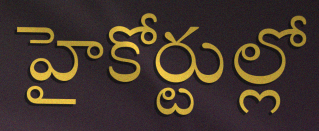
హైకోర్టుల్లో